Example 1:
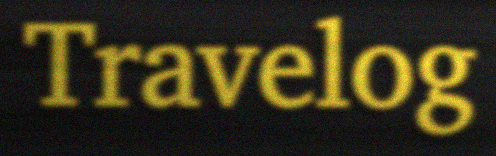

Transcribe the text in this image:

Travelog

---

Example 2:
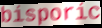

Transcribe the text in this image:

bisporic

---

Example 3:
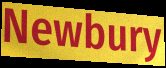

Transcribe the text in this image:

Newbury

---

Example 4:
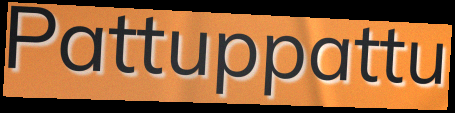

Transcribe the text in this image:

Pattuppattu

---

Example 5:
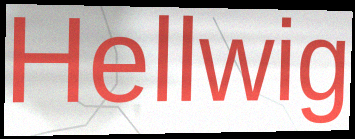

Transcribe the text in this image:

Hellwig